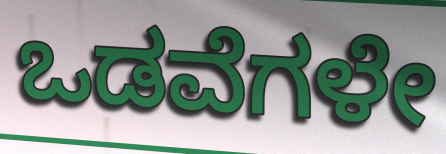
ಒಡವೆಗಳೇ